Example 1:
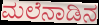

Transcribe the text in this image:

ಮಲೆನಾಡಿನ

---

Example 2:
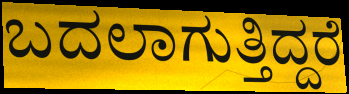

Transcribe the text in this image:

ಬದಲಾಗುತ್ತಿದ್ದರೆ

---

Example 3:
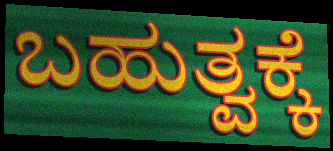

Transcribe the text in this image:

ಬಹುತ್ವಕ್ಕೆ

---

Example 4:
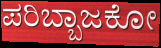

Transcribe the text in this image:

ಪರಿಬ್ಬಾಜಕೋ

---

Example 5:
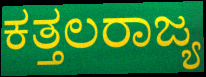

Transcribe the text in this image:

ಕತ್ತಲರಾಜ್ಯ